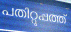
പതിറ്റുപ്പത്ത്